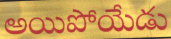
అయిపోయేడు